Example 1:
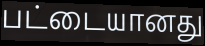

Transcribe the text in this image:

பட்டையானது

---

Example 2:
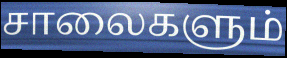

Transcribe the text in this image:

சாலைகளும்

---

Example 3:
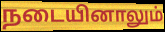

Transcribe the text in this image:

நடையினாலும்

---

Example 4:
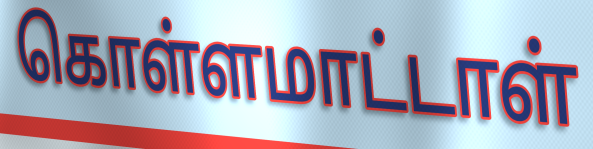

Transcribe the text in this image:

கொள்ளமாட்டாள்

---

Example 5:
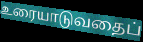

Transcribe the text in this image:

உரையாடுவதைப்